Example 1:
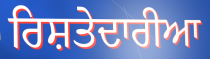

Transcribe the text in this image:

ਰਿਸ਼ਤੇਦਾਰੀਆ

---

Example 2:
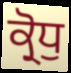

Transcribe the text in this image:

ਕ੍ਰੋਧੁ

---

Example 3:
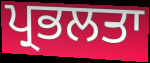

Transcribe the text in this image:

ਪ੍ਰਭਲਤਾ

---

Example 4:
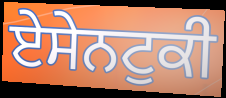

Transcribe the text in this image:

ਏਸੇਨਟੁਕੀ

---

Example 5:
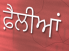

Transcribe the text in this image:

ਫ਼ੈਲੀਆਂ